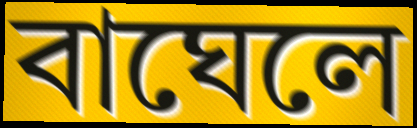
বাঘেলে